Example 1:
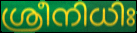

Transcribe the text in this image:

ശ്രീനിധിഃ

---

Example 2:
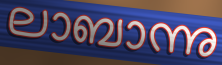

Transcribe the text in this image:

ലാബാന്നു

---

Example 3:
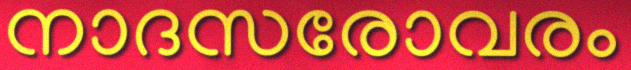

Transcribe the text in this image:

നാദസരോവരം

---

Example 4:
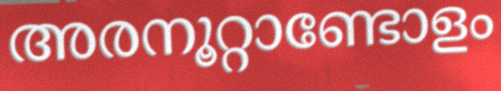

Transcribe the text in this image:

അരനൂറ്റാണ്ടോളം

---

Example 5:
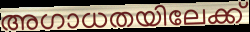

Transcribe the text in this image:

അഗാധതയിലേക്ക്